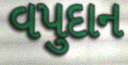
વપુદાન